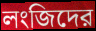
লংজিদের